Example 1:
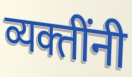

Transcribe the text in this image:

व्यक्‍तींनी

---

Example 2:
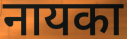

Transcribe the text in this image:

नायका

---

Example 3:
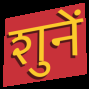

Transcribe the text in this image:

शुनें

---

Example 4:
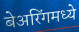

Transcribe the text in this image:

बेअरिंगमध्ये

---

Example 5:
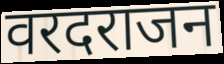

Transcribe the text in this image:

वरदराजन